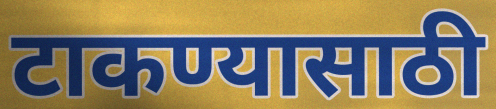
टाकण्यासाठी